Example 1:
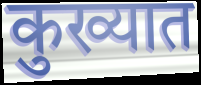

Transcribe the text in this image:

कुख्यात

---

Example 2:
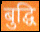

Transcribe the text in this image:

बुद्घि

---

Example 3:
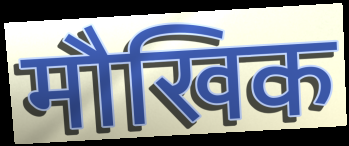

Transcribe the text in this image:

मौखिक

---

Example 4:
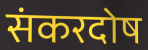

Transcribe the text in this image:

संकरदोष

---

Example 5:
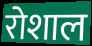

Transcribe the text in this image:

रोशाल